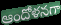
ఆందోళనగా